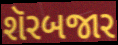
શૅરબજાર